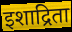
इशाद्रिता